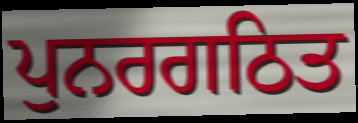
ਪੁਨਰਗਠਿਤ